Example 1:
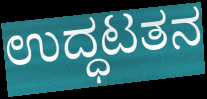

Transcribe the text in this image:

ಉದ್ಧಟತನ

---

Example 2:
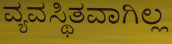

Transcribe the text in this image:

ವ್ಯವಸ್ಥಿತವಾಗಿಲ್ಲ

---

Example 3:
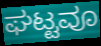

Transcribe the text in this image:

ಘಟ್ಟವೂ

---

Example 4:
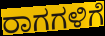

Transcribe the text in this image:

ರಾಗಗಳಿಗೆ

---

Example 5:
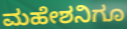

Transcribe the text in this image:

ಮಹೇಶನಿಗೂ